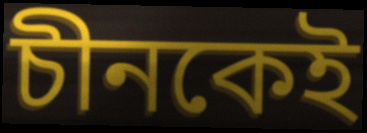
চীনকেই